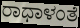
ರಾಧಾಳಂತೆ